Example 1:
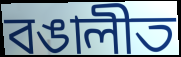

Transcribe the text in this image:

বঙালীত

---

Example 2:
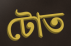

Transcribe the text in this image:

টোত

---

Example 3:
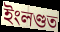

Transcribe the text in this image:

ইংলণ্ডত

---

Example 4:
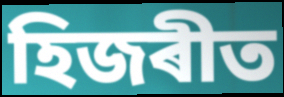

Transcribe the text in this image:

হিজৰীত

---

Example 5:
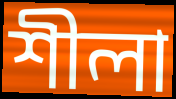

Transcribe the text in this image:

শীলা